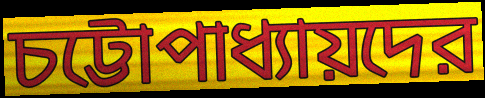
চট্টোপাধ্যায়দের